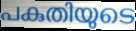
പകുതിയുടെ